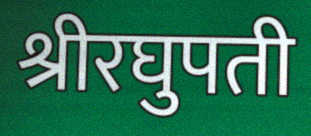
श्रीरघुपती